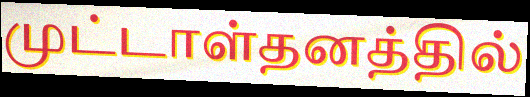
முட்டாள்தனத்தில்